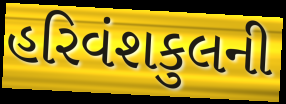
હરિવંશકુલની